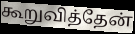
கூறுவித்தேன்